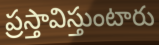
ప్రస్తావిస్తుంటారు